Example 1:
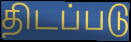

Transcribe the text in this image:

திடப்படு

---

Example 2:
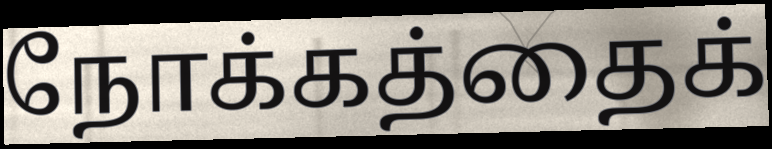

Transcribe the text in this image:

நோக்கத்தைக்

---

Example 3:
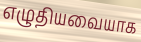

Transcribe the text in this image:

எழுதியவையாக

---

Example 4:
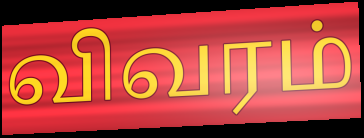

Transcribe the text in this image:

விவரம்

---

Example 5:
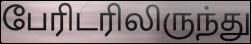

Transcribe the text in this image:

பேரிடரிலிருந்து